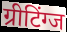
ग्रीटिंग्ज